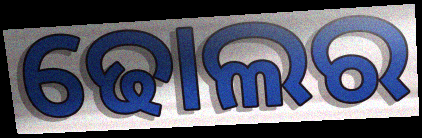
ଢୋଲର